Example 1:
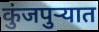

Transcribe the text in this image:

कुंजपुऱ्यात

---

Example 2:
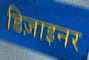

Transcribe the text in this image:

डिज़ाइनर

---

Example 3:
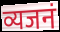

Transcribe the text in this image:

व्यजनं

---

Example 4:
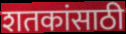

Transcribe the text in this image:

शतकांसाठी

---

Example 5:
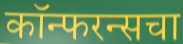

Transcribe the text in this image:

कॉन्फरन्सचा